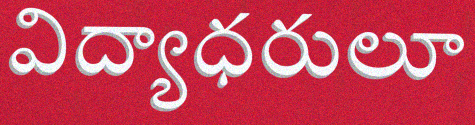
విద్యాధరులూ